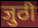
जुठी